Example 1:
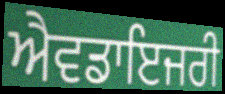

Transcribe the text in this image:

ਐਵਡਾਇਜਰੀ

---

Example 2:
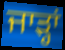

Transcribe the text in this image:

ਜਾੜ੍ਹਾਂ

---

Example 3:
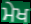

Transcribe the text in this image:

ਮੇਖ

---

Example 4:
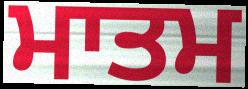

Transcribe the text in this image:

ਮਾਤਮ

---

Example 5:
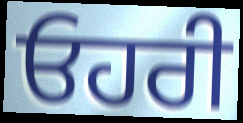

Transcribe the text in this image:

ਓਹਰੀ